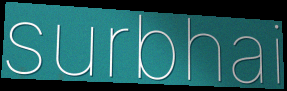
surbhai